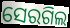
ସେରଗିଲ